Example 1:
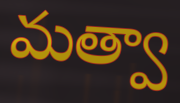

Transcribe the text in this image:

మత్వా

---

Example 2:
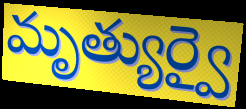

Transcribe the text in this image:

మృత్యుర్వై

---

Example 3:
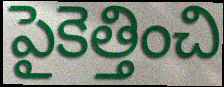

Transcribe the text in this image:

పైకెత్తించి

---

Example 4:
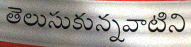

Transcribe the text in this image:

తెలుసుకున్నవాటిని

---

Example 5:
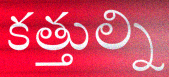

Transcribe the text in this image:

కత్తుల్ని